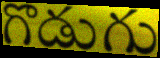
గొడుగు